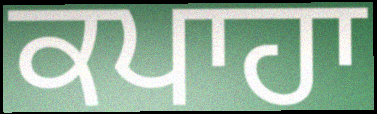
ਕਪਾਹਾ